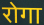
रोगा